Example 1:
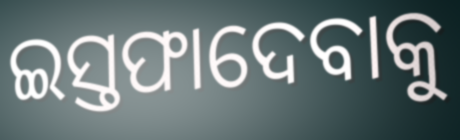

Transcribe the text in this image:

ଇସ୍ତଫାଦେବାକୁ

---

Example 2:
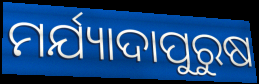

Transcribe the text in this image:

ମର୍ଯ୍ୟାଦାପୁରୁଷ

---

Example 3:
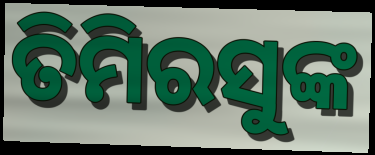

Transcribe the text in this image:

ତିମିରସୁଙ୍କ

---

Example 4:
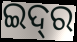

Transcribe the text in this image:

ଇଦ୍‍ର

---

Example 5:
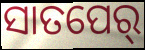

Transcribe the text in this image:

ସାତପେର୍